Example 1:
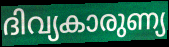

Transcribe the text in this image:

ദിവ്യകാരുണ്യ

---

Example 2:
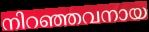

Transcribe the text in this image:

നിറഞ്ഞവനായ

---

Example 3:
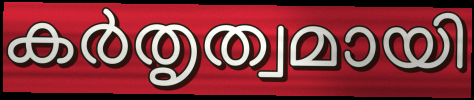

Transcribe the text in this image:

കർതൃത്വമായി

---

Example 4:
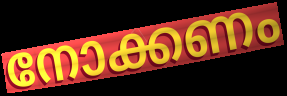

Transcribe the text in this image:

നോക്കണം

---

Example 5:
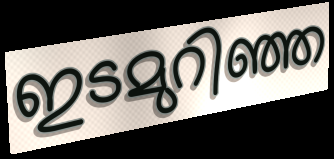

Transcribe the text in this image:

ഇടമുറിഞ്ഞ